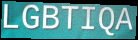
LGBTIQA